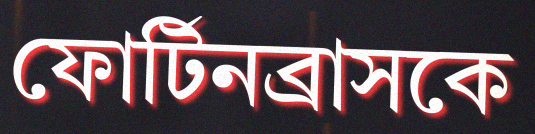
ফোর্টিনব্রাসকে